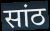
सांठ